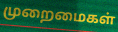
முறைமைகள்